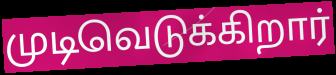
முடிவெடுக்கிறார்